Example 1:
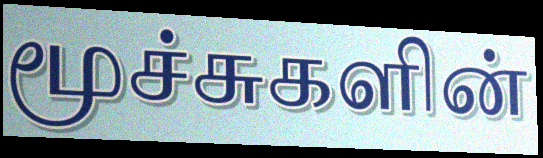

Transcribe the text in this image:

மூச்சுகளின்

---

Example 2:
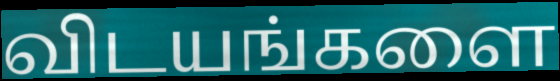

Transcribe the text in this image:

விடயங்களை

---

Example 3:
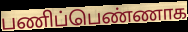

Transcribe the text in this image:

பணிப்பெண்ணாக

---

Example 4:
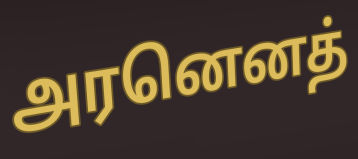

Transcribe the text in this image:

அரனெனத்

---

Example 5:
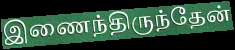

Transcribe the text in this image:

இணைந்திருந்தேன்